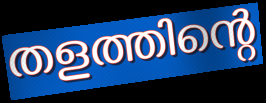
തളത്തിന്റെ